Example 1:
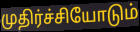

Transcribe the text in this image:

முதிர்ச்சியோடும்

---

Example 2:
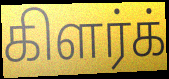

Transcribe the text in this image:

கிளர்க்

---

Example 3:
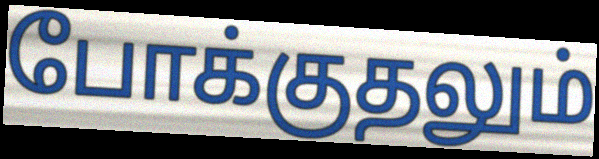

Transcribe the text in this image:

போக்குதலும்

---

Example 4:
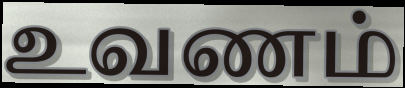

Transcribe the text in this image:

உவணம்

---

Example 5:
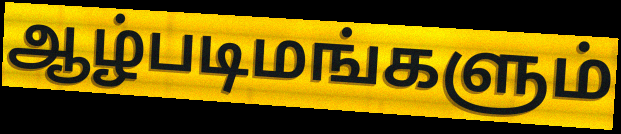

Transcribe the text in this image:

ஆழ்படிமங்களும்